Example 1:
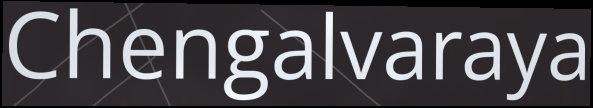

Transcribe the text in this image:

Chengalvaraya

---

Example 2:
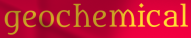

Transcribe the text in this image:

geochemical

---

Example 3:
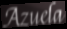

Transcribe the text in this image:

Azuela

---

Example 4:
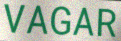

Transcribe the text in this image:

VAGAR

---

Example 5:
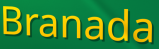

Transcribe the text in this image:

Branada